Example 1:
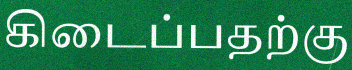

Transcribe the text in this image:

கிடைப்பதற்கு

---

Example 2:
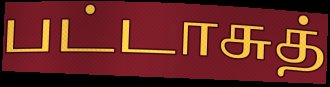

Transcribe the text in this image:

பட்டாசுத்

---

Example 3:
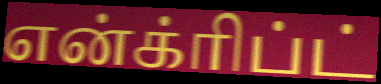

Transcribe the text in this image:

என்க்ரிப்ட்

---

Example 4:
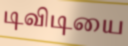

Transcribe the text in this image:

டிவிடியை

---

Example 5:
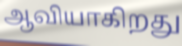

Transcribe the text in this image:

ஆவியாகிறது